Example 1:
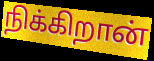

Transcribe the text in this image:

நிக்கிறான்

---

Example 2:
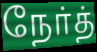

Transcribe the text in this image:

நேர்த்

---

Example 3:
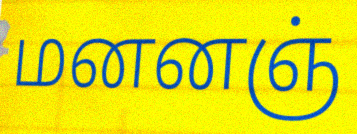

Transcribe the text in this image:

மனனஞ்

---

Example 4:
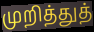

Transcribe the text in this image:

முறித்துத்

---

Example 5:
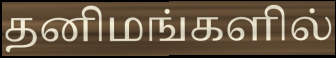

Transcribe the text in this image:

தனிமங்களில்